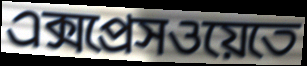
এক্সপ্রেসওয়েতে